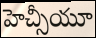
హెచ్సీయూ